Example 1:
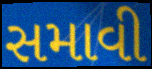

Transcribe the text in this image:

સમાવી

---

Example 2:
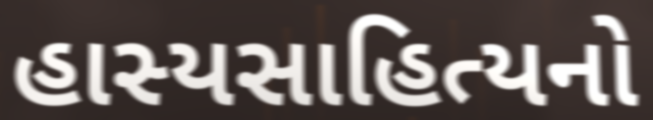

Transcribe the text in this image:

હાસ્યસાહિત્યનો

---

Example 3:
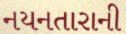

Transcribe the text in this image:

નયનતારાની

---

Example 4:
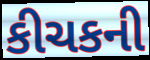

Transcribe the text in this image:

કીચકની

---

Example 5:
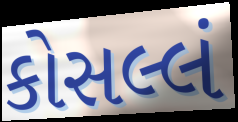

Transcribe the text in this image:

કોસલ્લં